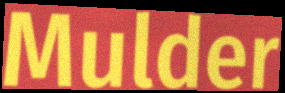
Mulder